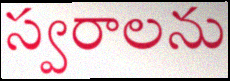
స్వరాలను